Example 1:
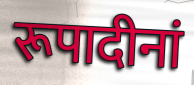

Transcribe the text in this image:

रूपादीनां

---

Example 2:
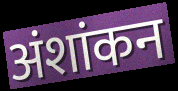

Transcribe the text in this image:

अंशांकन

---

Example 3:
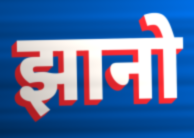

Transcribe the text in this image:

झानो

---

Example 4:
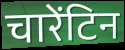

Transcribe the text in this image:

चारेंटिन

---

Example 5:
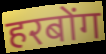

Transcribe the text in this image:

हरबोंग